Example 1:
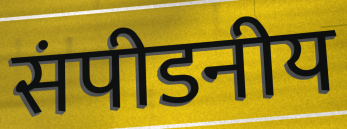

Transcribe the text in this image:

संपीडनीय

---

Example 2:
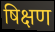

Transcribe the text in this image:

षिक्षण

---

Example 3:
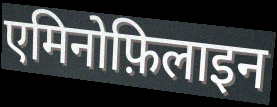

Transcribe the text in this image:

एमिनोफ़िलाइन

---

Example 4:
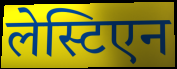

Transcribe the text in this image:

लेस्टिएन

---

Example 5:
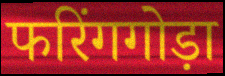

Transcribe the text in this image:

फरिंगगोड़ा